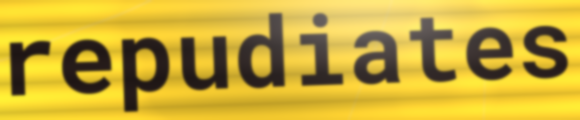
repudiates